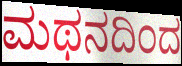
ಮಥನದಿಂದ